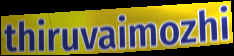
thiruvaimozhi